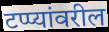
टप्प्यांवरील